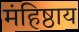
मंहिष्ठाय